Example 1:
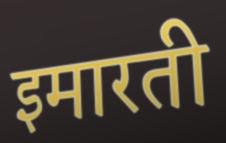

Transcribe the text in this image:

इमारती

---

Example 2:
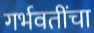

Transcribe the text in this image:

गर्भवतींचा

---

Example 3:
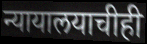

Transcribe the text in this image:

न्यायालयाचीही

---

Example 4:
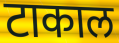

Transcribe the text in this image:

टाकाल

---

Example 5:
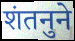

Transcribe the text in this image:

शंतनुने